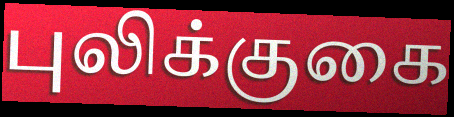
புலிக்குகை